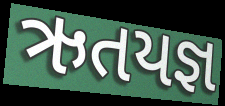
ઋતયજ્ઞ